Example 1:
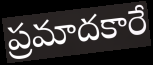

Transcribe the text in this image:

ప్రమాదకారే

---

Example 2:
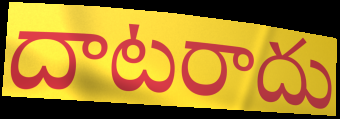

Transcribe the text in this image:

దాటరాదు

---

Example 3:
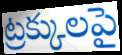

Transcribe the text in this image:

ట్రక్కులపై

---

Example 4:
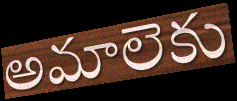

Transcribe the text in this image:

అమాలెకు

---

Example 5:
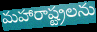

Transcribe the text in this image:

మహారాష్ట్రలను